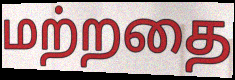
மற்றதை